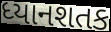
ધ્યાનશતક